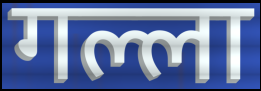
गल्ला